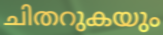
ചിതറുകയും